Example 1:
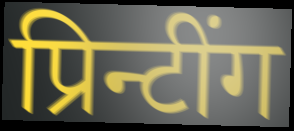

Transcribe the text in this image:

प्रिन्टींग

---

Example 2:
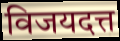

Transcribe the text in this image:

विजयदत्त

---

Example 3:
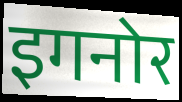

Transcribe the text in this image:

इगनोर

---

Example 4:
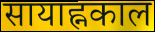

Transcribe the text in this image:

सायाह्नकाल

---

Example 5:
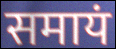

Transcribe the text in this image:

समायं